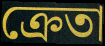
ক্রেতা